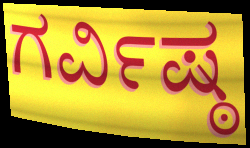
ಗರ್ವಿಷ್ಠ